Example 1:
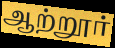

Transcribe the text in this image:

ஆற்றூர்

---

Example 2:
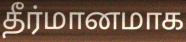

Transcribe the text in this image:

தீர்மானமாக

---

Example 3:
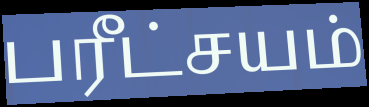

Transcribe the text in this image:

பரீட்சயம்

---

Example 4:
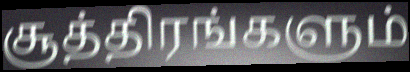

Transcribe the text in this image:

சூத்திரங்களும்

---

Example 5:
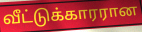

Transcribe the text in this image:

வீட்டுக்காரரான